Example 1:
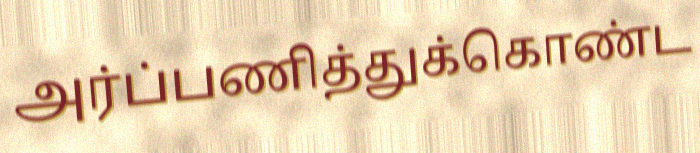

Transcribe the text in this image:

அர்ப்பணித்துக்கொண்ட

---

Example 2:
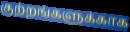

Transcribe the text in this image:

குற்றங்களுக்காக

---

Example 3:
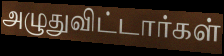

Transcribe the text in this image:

அழுதுவிட்டார்கள்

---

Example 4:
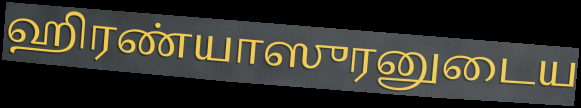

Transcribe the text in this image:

ஹிரண்யாஸுரனுடைய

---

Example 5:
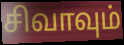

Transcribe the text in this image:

சிவாவும்